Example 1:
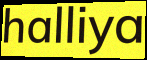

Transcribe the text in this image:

halliya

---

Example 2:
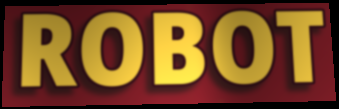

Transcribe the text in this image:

ROBOT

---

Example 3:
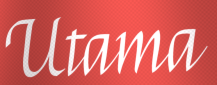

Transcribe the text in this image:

Utama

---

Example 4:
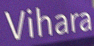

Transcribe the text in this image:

Vihara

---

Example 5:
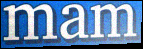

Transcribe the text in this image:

mam